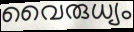
വൈരുധ്യം